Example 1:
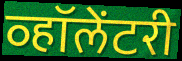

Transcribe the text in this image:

व्हॉलेंटरी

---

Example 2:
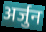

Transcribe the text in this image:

अर्जुन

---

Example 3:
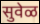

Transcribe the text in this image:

सुवेळ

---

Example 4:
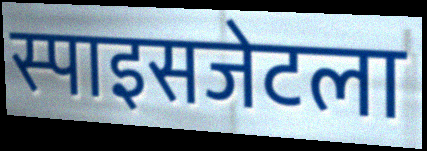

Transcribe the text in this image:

स्पाइसजेटला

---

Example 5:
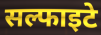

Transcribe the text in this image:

सल्फाइटे